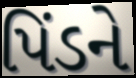
પિંડને